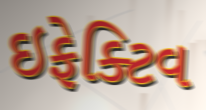
ઇફેક્ટિવ